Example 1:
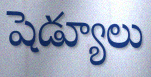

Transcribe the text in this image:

షెడ్యూలు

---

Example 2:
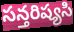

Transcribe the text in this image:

సన్తరిష్యసి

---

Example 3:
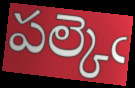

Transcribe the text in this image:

పల్కెఁ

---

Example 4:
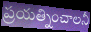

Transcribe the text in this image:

ప్రయత్నించాలనీ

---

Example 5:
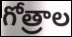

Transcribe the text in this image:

గోత్రాల